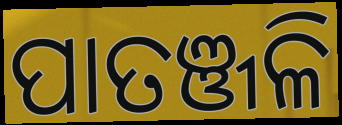
ପାତଞ୍ଜଳି